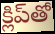
క్లిప్‌తో